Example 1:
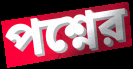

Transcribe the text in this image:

পশ্নের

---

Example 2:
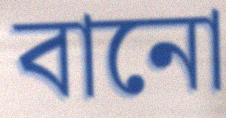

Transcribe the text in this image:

বানো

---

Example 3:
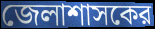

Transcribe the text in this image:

জেলাশাসকের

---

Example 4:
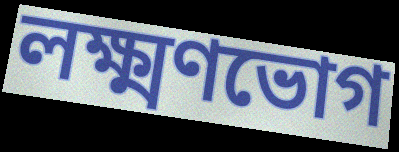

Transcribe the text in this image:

লক্ষ্মণভোগ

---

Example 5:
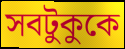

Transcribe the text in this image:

সবটুকুকে